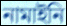
নামাইনি